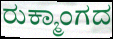
ರುಕ್ಮಾಂಗದ